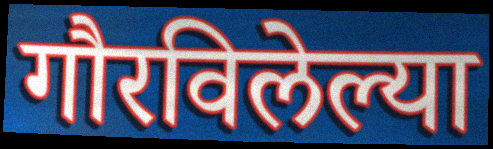
गौरविलेल्या